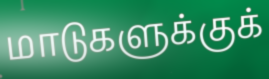
மாடுகளுக்குக்